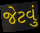
જેટવું